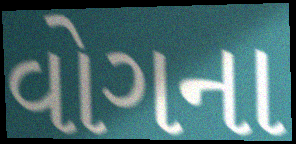
વોગના